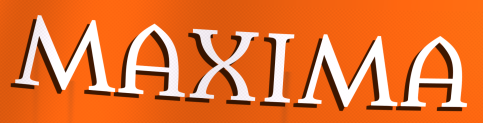
MAXIMA